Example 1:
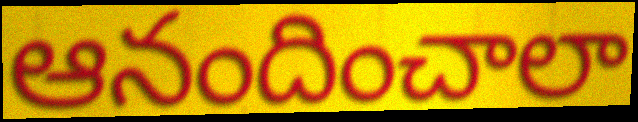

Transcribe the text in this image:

ఆనందించాలా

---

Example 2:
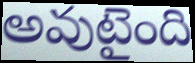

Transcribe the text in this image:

అవుటైంది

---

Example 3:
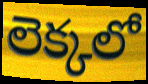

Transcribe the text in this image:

లెక్కలో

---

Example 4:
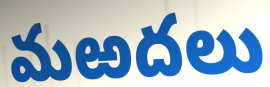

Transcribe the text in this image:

మఱదలు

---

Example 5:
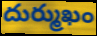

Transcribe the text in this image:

దుర్ముఖం